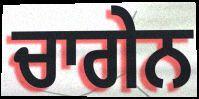
ਚਾਗੇਨ